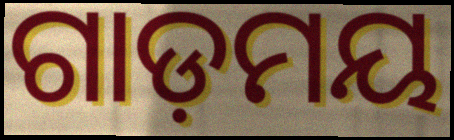
ଗାଡ଼ମୟ